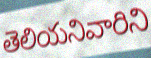
తెలియనివారిని